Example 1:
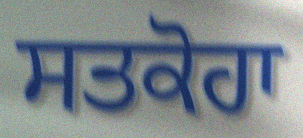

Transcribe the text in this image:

ਸਤਕੋਹਾ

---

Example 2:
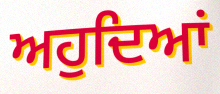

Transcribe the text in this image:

ਅਹੁਦਿਆਂ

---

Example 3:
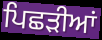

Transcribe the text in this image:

ਪਿਛੜੀਆਂ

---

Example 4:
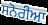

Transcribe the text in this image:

ਸਨੋਰੀਆ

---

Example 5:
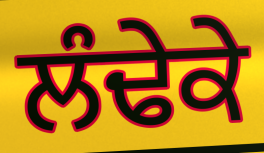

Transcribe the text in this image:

ਲੰਢੇਕੇ